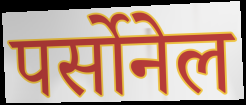
पर्सोनेल